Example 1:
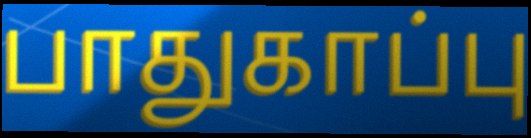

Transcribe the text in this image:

பாதுகாப்பு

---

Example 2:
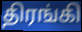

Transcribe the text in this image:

திரங்கி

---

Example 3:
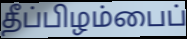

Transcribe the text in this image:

தீப்பிழம்பைப்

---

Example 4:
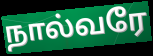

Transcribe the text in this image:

நால்வரே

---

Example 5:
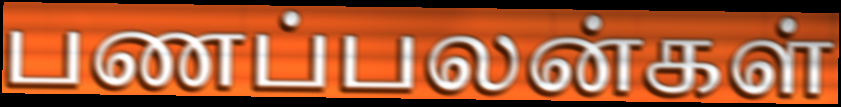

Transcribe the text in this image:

பணப்பலன்கள்